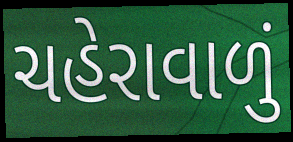
ચહેરાવાળું